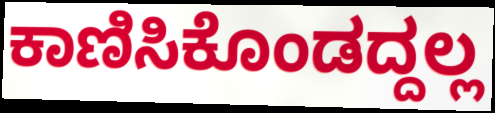
ಕಾಣಿಸಿಕೊಂಡದ್ದಲ್ಲ